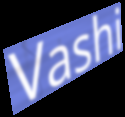
Vashi